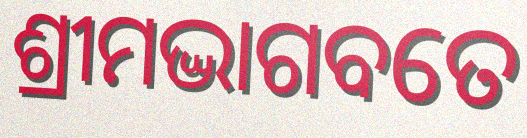
ଶ୍ରୀମଦ୍ଭାଗବତେ